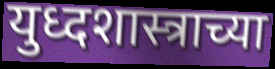
युध्दशास्त्राच्या